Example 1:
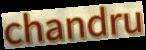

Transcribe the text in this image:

chandru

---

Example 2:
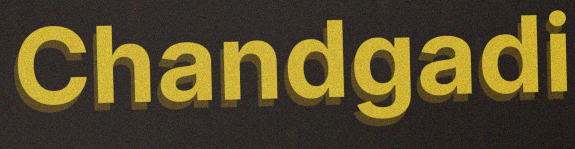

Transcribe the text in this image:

Chandgadi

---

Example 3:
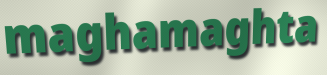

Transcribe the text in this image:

maghamaghta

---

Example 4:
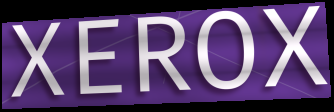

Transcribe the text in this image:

XEROX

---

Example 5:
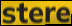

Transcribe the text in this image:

stere